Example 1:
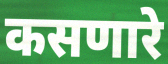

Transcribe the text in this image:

कसणारे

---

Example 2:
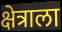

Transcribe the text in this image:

क्षेत्राला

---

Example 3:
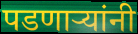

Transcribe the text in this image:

पडणाऱ्यांनी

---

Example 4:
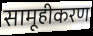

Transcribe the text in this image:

सामूहीकरण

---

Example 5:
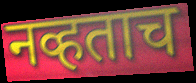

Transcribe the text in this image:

नव्हताच